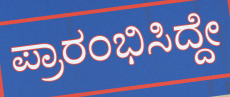
ಪ್ರಾರಂಭಿಸಿದ್ದೇ